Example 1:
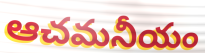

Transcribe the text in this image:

ఆచమనీయం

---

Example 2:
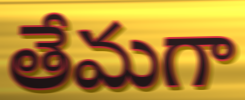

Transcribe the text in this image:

తేమగా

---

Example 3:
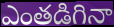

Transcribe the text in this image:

ఎంతడిగినా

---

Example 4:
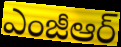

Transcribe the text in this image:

ఎంజీఆర్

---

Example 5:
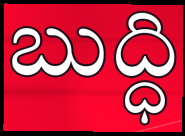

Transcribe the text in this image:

బుద్ధి